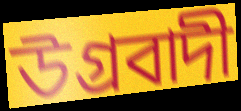
উগ্রবাদী